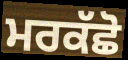
ਮਰਕੱਛੋ